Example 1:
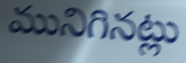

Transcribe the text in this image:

మునిగినట్లు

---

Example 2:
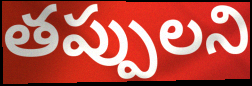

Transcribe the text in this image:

తప్పులని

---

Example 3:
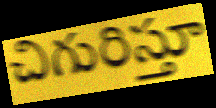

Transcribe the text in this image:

చిగురిస్తూ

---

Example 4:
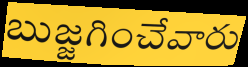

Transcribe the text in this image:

బుజ్జగించేవారు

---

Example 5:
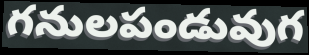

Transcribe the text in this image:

గనులపండువుగ